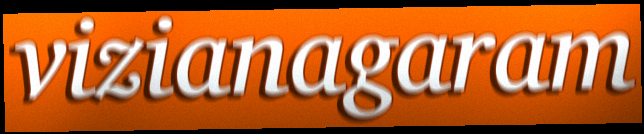
vizianagaram